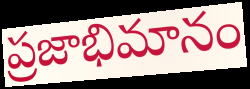
ప్రజాభిమానం